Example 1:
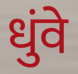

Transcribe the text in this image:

धुंवे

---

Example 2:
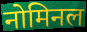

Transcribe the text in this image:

नोमिनल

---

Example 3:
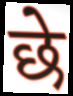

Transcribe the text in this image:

छे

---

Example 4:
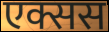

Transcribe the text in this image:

एक्सस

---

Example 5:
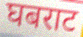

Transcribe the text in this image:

घबराट